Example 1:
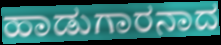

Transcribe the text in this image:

ಹಾಡುಗಾರನಾದ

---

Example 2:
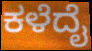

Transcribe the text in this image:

ಕಳೆದೈ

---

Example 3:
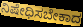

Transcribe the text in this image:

ನಿಷೇಧಿಸಬೇಕಾದ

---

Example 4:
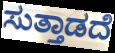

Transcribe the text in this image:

ಸುತ್ತಾಡದೆ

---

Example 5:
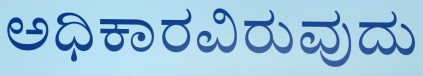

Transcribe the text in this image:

ಅಧಿಕಾರವಿರುವುದು